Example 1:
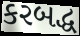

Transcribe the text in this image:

કરબદ્ધ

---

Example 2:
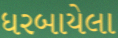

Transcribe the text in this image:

ધરબાયેલા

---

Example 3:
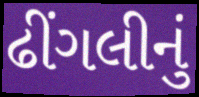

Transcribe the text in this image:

ઢીંગલીનું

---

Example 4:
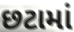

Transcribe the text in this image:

છટામાં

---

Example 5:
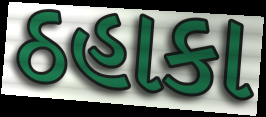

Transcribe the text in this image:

ઠહાકા